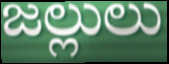
జల్లులు